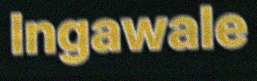
Ingawale